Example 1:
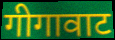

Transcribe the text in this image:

गीगावाट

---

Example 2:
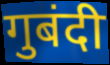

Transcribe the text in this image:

गुबंदी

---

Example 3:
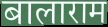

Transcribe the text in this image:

बालाराम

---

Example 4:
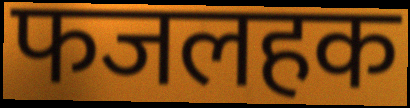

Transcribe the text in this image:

फजलहक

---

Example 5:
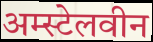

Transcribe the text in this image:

अम्स्टेलवीन